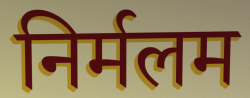
निर्मलम